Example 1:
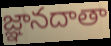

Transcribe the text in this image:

జ్ఞానదాతా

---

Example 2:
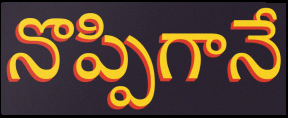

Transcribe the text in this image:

నొప్పిగానే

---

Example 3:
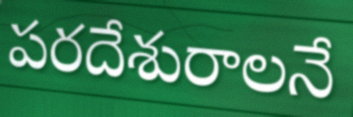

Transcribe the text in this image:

పరదేశురాలనే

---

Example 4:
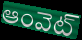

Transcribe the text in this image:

ఆంవెట్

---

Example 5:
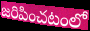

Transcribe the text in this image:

జరిపించటంలో